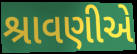
શ્રાવણીએ